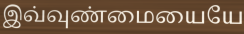
இவ்வுண்மையையே